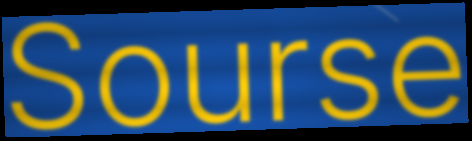
Sourse